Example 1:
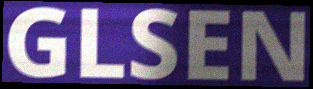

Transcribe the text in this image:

GLSEN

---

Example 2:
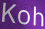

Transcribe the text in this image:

Koh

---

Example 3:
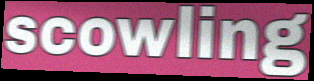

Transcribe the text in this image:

scowling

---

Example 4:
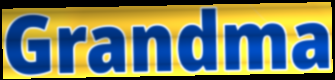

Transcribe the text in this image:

Grandma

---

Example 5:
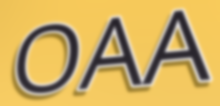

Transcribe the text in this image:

OAA